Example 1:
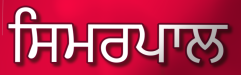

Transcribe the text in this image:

ਸਿਮਰਪਾਲ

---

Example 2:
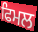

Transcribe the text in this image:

ਫਿਮਲ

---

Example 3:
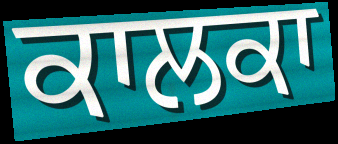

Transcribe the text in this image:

ਕਾਲਕਾ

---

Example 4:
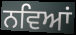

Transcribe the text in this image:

ਨਵਿਆਂ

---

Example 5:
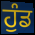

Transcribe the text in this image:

ਹੁੰਡ